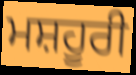
ਮਸ਼ਹੂਰੀ